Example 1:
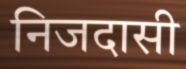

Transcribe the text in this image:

निजदासी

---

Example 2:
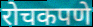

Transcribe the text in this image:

रोचकपणे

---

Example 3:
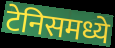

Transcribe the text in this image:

टेनिसमध्ये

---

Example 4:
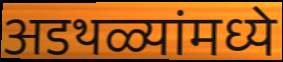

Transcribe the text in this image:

अडथळ्यांमध्ये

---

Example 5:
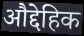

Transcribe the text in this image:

औद्देहिक